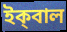
ইক্‌বাল